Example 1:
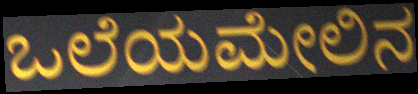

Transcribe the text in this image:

ಒಲೆಯಮೇಲಿನ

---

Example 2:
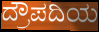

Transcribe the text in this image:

ದ್ರೌಪದಿಯ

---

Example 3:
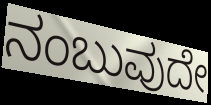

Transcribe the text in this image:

ನಂಬುವುದೇ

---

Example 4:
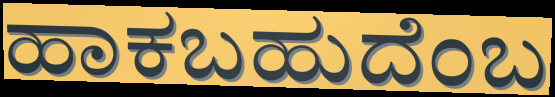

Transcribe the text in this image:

ಹಾಕಬಹುದೆಂಬ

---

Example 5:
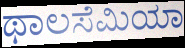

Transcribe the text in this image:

ಥಾಲಸೆಮಿಯಾ